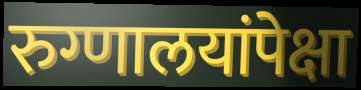
रुग्णालयांपेक्षा